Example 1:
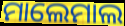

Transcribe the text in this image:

ମାଲେମାଲ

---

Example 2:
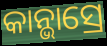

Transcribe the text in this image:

କାନ୍ଭାସ୍ରେ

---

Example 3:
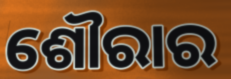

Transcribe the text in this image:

ଶୌରାର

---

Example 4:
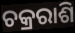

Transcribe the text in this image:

ଚକ୍ରରାଶି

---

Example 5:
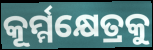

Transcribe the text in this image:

କୂର୍ମ୍ମକ୍ଷେତ୍ରକୁ